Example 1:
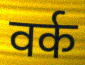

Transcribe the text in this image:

वर्क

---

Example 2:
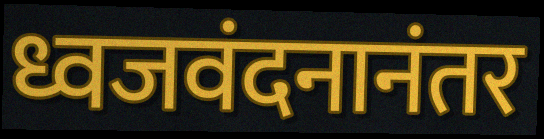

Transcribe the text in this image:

ध्वजवंदनानंतर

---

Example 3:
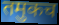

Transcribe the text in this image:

तमुकच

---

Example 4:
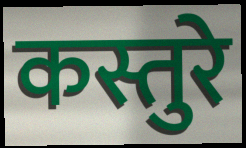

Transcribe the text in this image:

कस्तुरे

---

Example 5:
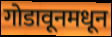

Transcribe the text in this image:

गोडावूनमधून